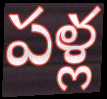
పళ్ల